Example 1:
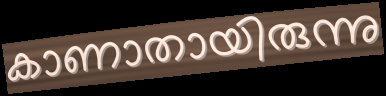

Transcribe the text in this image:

കാണാതായിരുന്നു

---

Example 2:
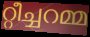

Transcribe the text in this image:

റ്റീച്ചറമ്മ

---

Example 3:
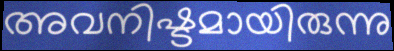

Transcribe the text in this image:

അവനിഷ്ടമായിരുന്നു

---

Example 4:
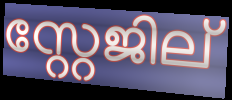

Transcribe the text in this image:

സ്റ്റേജില്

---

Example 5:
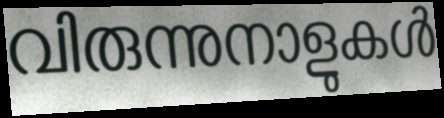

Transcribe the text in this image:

വിരുന്നുനാളുകൾ